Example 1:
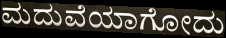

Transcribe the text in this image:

ಮದುವೆಯಾಗೋದು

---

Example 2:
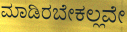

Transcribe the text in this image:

ಮಾಡಿರಬೇಕಲ್ಲವೇ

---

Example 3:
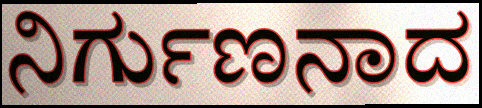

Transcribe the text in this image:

ನಿರ್ಗುಣನಾದ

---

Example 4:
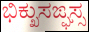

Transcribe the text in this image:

ಭಿಕ್ಖುಸಙ್ಘಸ್ಸ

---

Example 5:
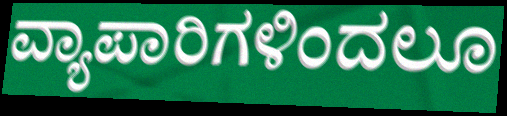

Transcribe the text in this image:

ವ್ಯಾಪಾರಿಗಳಿಂದಲೂ